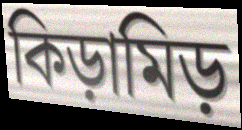
কিড়ামিড়